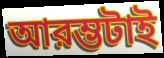
আরম্ভটাই